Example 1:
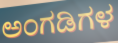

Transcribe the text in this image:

ಅಂಗಡಿಗಳ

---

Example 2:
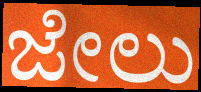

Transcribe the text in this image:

ಜೇಲು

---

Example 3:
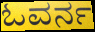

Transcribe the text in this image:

ಓವರ್ನ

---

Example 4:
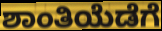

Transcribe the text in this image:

ಶಾಂತಿಯೆಡೆಗೆ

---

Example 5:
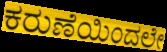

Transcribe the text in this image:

ಕರುಣೆಯಿಂದಲೇ